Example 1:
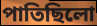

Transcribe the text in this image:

পাতিছিলো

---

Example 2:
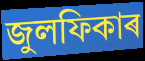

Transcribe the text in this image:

জুলফিকাৰ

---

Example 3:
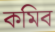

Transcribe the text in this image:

কমিব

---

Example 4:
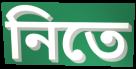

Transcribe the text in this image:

নিতে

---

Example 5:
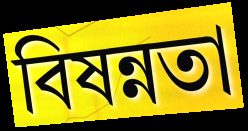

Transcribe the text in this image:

বিষন্নতা